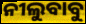
ନୀଲୁବାବୁ